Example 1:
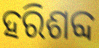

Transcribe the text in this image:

ହରିଶବ୍ଦ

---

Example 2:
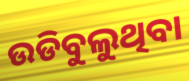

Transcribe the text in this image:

ଉଡିବୁଲୁଥିବା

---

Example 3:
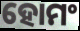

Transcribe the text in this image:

ହୋମଂ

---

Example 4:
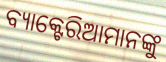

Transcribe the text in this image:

ବ୍ୟାକ୍ଟେରିଆମାନଙ୍କୁ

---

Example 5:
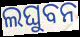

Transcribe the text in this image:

ଲଘୁବନ